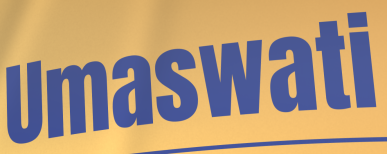
Umaswati